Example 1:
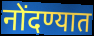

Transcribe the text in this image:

नोंदण्यात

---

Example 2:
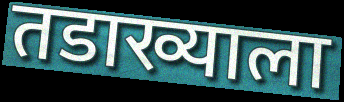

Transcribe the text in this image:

तडाख्याला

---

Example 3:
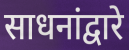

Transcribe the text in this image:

साधनांद्वारे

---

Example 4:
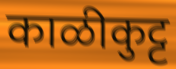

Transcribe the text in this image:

काळीकुट्ट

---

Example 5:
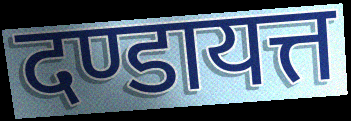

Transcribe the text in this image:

दण्डायत्त